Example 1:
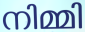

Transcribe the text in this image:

നിമ്മി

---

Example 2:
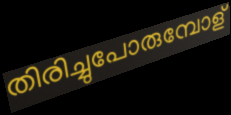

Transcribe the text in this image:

തിരിച്ചുപോരുമ്പോള്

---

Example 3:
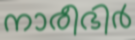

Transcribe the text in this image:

നാരീഭിർ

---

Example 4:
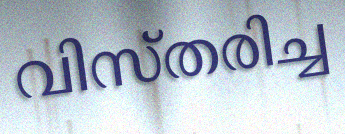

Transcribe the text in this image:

വിസ്തരിച്ച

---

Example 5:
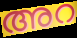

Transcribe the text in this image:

അറ